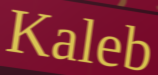
Kaleb